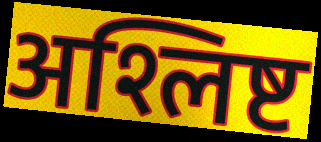
अश्लिष्ट